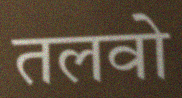
तलवो